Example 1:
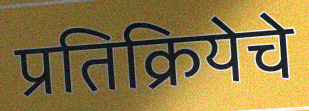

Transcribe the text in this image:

प्रतिक्रियेचे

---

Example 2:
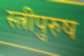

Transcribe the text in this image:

स्त्रीपुरुष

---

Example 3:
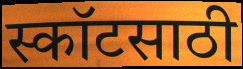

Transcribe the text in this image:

स्कॉटसाठी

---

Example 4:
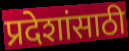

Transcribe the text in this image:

प्रदेशांसाठी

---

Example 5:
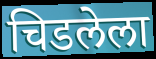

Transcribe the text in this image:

चिडलेला